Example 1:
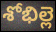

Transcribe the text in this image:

శోభిల్లె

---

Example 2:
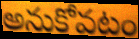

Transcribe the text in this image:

అనుకోవటం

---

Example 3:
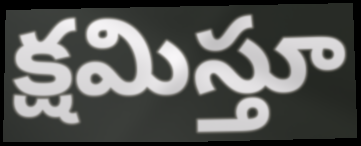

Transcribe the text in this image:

క్షమిస్తూ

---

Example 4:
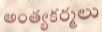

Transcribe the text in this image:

అంత్యకర్మలు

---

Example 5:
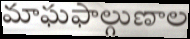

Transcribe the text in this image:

మాఘఫాల్గుణాల